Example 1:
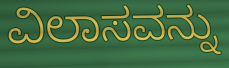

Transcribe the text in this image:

ವಿಲಾಸವನ್ನು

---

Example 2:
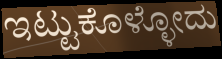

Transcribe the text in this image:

ಇಟ್ಟುಕೊಳ್ಳೋದು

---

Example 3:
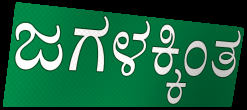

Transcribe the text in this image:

ಜಗಳಕ್ಕಿಂತ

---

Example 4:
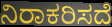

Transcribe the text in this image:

ನಿರಾಕರಿಸದೆ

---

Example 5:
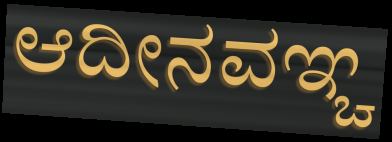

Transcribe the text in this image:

ಆದೀನವಞ್ಚ